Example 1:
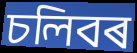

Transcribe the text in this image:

চলিবৰ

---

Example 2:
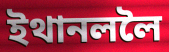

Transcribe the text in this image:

ইথানললৈ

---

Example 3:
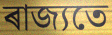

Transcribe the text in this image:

ৰাজ্যতে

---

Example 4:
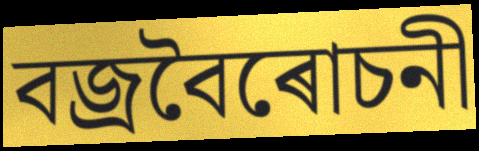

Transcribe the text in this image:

বজ্ৰবৈৰোচনী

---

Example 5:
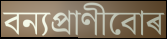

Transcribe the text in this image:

বন্যপ্ৰাণীবোৰ